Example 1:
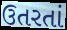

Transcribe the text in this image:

ઉતરતાં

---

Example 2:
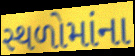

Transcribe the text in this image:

સ્થળોમાંના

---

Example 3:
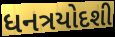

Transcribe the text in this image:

ધનત્રયોદશી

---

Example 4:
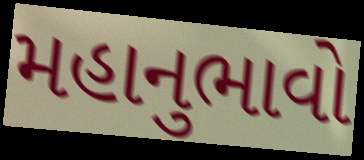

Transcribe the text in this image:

મહાનુભાવો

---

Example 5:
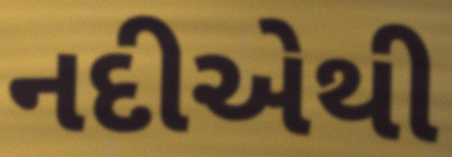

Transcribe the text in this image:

નદીએથી